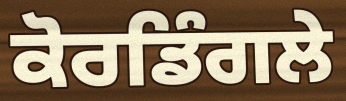
ਕੋਰਡਿੰਗਲੇ